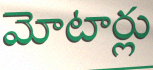
మోటార్లు